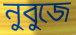
নুবুজে